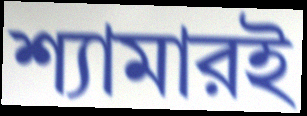
শ্যামারই